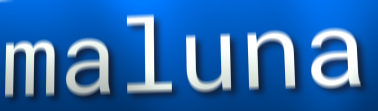
maluna